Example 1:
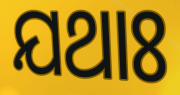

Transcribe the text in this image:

ଯଥାଃ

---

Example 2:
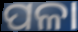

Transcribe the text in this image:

ପଳା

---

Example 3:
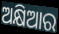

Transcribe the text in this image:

ଅକ୍ଷିଆର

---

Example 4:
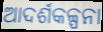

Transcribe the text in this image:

ଆଦର୍ଶକଳ୍ପନା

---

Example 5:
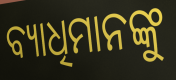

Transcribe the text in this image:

ବ୍ୟାଧିମାନଙ୍କୁ